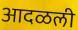
आदळली